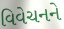
વિવેચનને